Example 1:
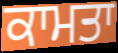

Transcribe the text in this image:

ਕਾਮਤਾ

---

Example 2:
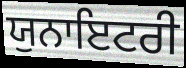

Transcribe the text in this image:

ਯੁਨਾਇਟਰੀ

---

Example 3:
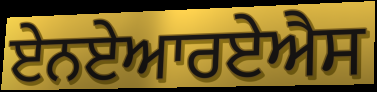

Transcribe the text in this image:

ਏਨਏਆਰਏਐਸ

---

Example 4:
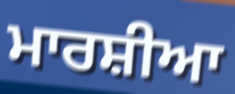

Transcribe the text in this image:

ਮਾਰਸ਼ੀਆ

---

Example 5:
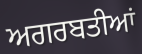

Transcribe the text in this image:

ਅਗਰਬਤੀਆਂ